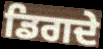
ਡਿਗਦੇ